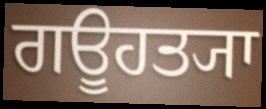
ਗਊਹਤ੍ਯਾ